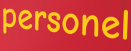
personel